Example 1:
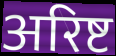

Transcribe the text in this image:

अरिष्ट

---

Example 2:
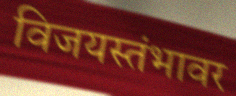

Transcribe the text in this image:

विजयस्तंभावर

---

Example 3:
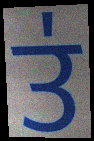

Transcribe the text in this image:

उ॑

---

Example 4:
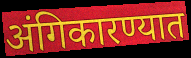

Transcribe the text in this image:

अंगिकारण्यात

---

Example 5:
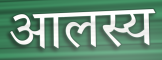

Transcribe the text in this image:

आलस्य